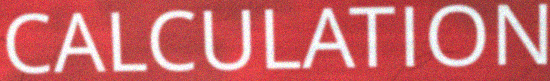
CALCULATION